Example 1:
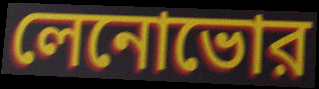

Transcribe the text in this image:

লেনোভোর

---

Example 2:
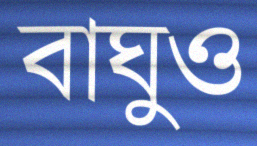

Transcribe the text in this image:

বাঘুও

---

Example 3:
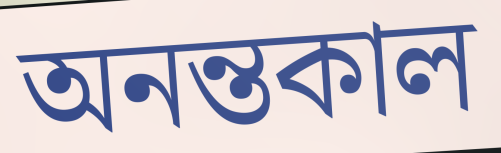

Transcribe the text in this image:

অনন্তকাল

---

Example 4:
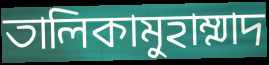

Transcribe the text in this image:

তালিকামুহাম্মাদ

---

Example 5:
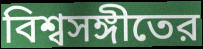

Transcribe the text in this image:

বিশ্বসঙ্গীতের